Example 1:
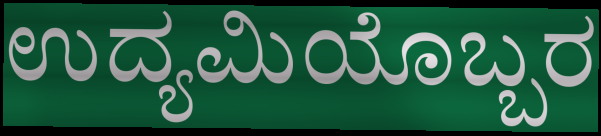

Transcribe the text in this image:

ಉದ್ಯಮಿಯೊಬ್ಬರ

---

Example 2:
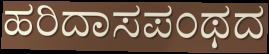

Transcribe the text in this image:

ಹರಿದಾಸಪಂಥದ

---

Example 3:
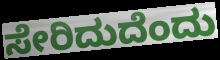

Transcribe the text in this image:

ಸೇರಿದುದೆಂದು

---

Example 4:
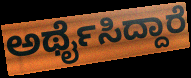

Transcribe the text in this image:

ಅರ್ಥೈಸಿದ್ದಾರೆ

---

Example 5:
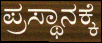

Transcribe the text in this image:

ಪ್ರಸ್ಥಾನಕ್ಕೆ